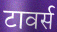
टावर्स